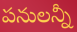
పనులన్నీ